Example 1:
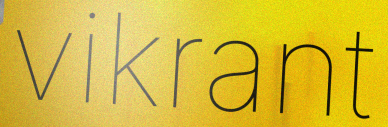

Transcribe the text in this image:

vikrant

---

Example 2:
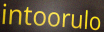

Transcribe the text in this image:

intoorulo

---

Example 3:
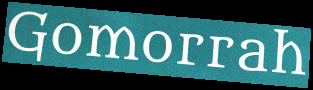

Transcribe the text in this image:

Gomorrah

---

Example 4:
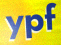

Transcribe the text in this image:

ypf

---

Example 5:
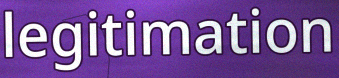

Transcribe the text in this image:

legitimation